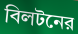
বিলটনের